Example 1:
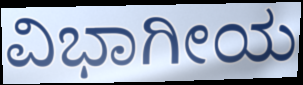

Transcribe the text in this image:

ವಿಭಾಗೀಯ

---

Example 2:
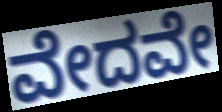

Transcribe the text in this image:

ವೇದವೇ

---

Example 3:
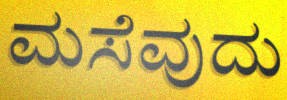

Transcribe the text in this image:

ಮಸೆವುದು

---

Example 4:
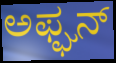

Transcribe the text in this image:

ಅಫ್ಘನ್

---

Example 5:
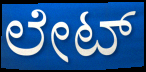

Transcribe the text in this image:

ಲೇಟ್